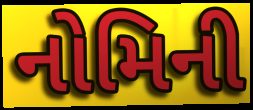
નોમિની